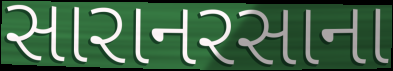
સારાનરસાના